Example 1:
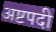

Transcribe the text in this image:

अष्टपदी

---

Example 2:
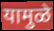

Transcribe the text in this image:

यामुळे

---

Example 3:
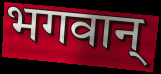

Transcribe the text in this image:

भगवान्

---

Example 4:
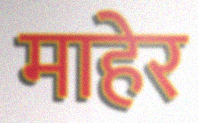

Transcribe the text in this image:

माहेर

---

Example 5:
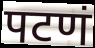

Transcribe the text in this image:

पटणं